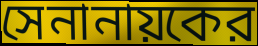
সেনানায়কের